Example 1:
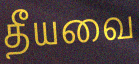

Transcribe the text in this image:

தீயவை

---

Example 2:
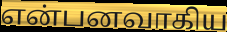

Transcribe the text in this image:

என்பனவாகிய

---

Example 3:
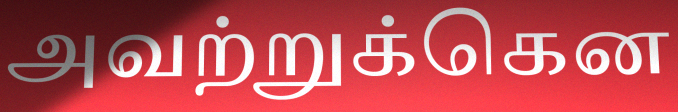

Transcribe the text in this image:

அவற்றுக்கென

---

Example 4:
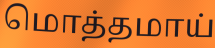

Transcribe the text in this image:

மொத்தமாய்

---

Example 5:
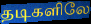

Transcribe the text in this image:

தடிகளிலே